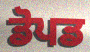
ਡੋਪਡ